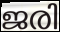
ജരി